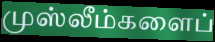
முஸ்லீம்களைப்